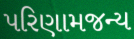
પરિણામજન્ય